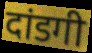
दांडगी